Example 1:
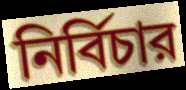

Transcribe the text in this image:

নির্বিচার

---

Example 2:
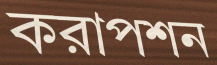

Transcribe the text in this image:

করাপশন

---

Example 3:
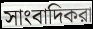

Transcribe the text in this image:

সাংবাদিকরা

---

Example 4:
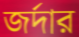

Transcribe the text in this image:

জর্দার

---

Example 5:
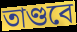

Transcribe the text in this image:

তাণ্ডবে